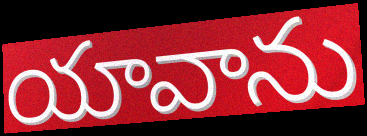
యావాను